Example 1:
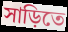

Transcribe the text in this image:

সাড়িতে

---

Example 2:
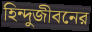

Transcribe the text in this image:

হিন্দুজীবনের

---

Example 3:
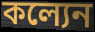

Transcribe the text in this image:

কল্যেন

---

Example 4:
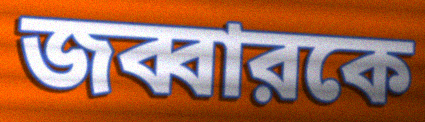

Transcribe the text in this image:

জব্বারকে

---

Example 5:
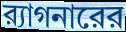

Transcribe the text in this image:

র‍্যাগনারের